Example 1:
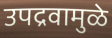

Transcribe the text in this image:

उपद्रवामुळे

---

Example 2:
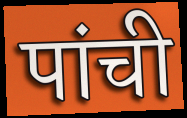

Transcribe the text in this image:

पांची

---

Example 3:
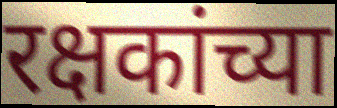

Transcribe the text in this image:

रक्षकांच्या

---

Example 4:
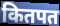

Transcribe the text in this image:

कितपत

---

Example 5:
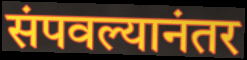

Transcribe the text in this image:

संपवल्यानंतर